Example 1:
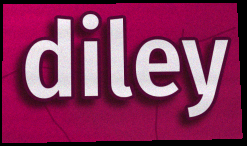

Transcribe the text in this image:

diley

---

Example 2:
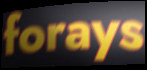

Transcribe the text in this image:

forays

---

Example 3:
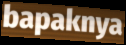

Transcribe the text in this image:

bapaknya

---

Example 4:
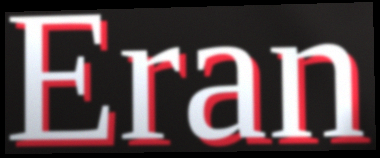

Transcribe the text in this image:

Eran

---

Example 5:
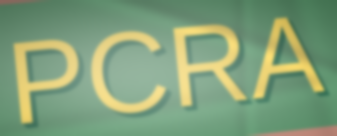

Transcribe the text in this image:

PCRA